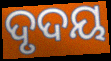
ଦୃଦୟ